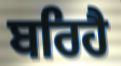
ਬਰਿਹੈ